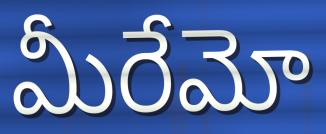
మీరేమో